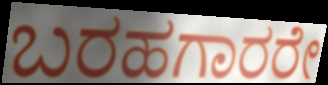
ಬರಹಗಾರರೇ